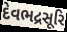
દેવભદ્રસૂરિ